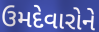
ઉમદેવારોને